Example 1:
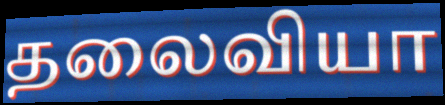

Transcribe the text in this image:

தலைவியா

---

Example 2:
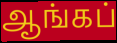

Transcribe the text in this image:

ஆங்கப்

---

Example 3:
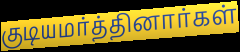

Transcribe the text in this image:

குடியமர்த்தினார்கள்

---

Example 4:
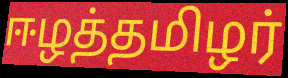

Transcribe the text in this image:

ஈழத்தமிழர்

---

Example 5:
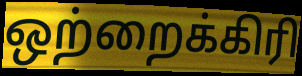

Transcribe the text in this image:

ஒற்றைக்கிரி